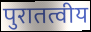
पुरातत्वीय